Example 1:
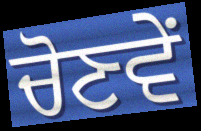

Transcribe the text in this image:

ਚੋਣਵੇਂ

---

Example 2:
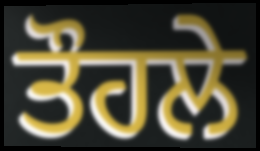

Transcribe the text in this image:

ਤੌਹਲੇ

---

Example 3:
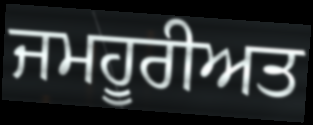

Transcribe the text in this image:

ਜਮਹੂਰੀਅਤ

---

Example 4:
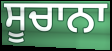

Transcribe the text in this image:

ਸੂਚਾਨਾ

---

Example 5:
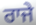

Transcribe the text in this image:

ਰਾਜੇ